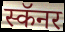
स्कॅनर